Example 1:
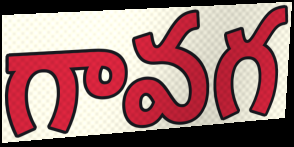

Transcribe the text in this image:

గావగ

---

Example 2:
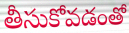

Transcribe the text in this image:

తీసుకోవడంతో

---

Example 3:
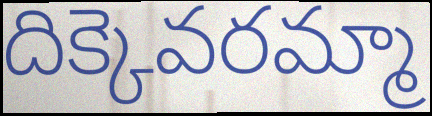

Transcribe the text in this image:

దిక్కెవరమ్మా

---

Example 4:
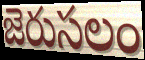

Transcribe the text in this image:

జెరుసలం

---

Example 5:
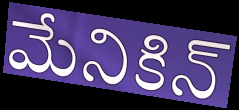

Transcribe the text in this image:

మేనికిన్